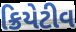
ક્રિયેટીવ